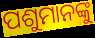
ପଶୁମାନଙ୍କୁ